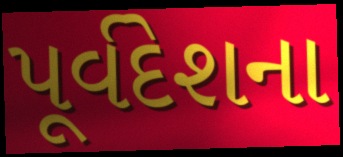
પૂર્વદેશના